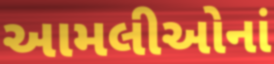
આમલીઓનાં